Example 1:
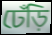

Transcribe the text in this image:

ঢেঁড়ি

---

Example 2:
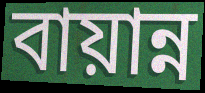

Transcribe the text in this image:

বায়ান্ন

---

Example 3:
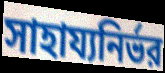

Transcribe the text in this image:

সাহায্যনির্ভর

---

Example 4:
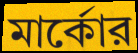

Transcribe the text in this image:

মার্কোর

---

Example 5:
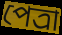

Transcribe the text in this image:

পেত্রা